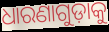
ଧାରଣାଗୁଡ଼ାକୁ